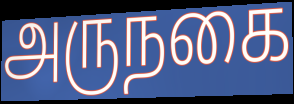
அருநகை